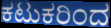
ಕಟುಕರಿಂದ